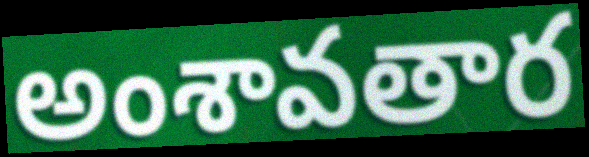
అంశావతార